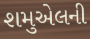
શમુએલની